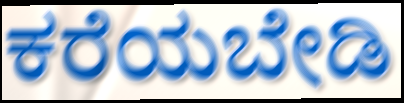
ಕರೆಯಬೇಡಿ